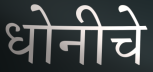
धोनीचे